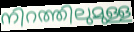
നിറത്തിലുമുള്ള